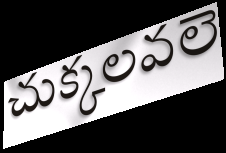
చుక్కలవలె